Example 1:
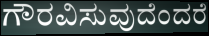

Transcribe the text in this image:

ಗೌರವಿಸುವುದೆಂದರೆ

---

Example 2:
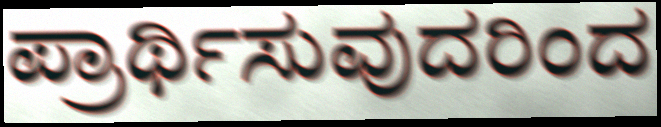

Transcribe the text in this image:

ಪ್ರಾರ್ಥಿಸುವುದರಿಂದ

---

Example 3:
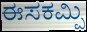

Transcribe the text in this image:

ಈಸಕಮ್ಪಿ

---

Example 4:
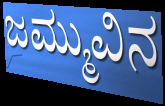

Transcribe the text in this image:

ಜಮ್ಮುವಿನ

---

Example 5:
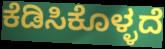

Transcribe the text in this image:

ಕೆಡಿಸಿಕೊಳ್ಳದೆ